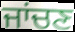
ਜਾਂਚਣ